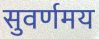
सुवर्णमय